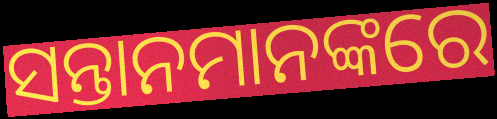
ସନ୍ତାନମାନଙ୍କରେ